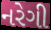
નરેગી